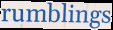
rumblings